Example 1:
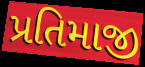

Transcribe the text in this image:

પ્રતિમાજી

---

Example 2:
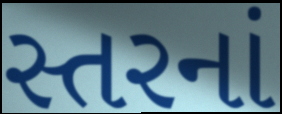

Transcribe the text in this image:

સ્તરનાં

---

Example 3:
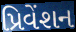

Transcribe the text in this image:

પ્રિવેંશન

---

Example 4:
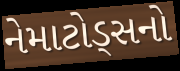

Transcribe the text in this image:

નેમાટોડ્સનો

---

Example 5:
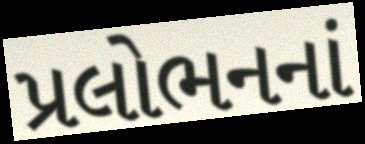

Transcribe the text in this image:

પ્રલોભનનાં